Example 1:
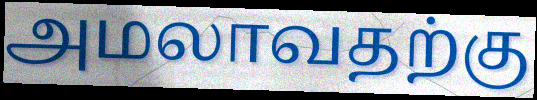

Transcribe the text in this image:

அமலாவதற்கு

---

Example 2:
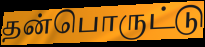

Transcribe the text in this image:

தன்பொருட்டு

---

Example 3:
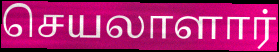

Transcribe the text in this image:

செயலாளார்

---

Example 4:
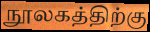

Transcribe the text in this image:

நூலகத்திற்கு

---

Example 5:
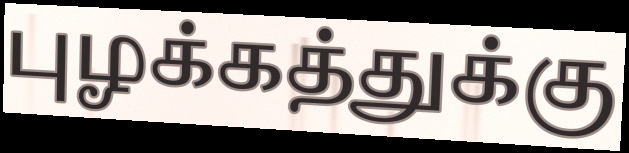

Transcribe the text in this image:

புழக்கத்துக்கு